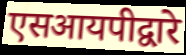
एसआयपीद्वारे